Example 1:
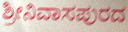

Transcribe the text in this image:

ಶ್ರೀನಿವಾಸಪುರದ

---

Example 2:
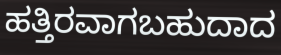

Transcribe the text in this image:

ಹತ್ತಿರವಾಗಬಹುದಾದ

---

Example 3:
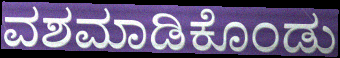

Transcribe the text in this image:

ವಶಮಾಡಿಕೊಂಡು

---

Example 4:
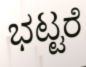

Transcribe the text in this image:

ಭಟ್ಟರೆ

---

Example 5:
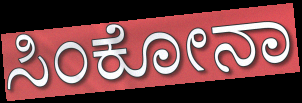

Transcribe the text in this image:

ಸಿಂಕೋನಾ